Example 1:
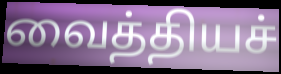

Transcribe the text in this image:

வைத்தியச்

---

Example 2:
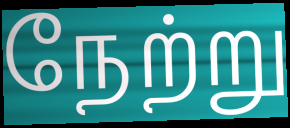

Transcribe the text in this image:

நேற்று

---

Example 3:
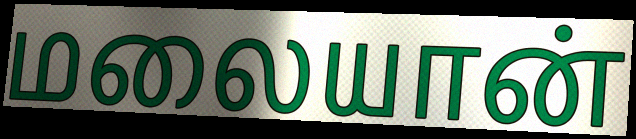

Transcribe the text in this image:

மலையான்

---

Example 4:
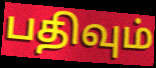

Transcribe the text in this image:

பதிவும்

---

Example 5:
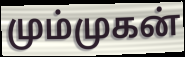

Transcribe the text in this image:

மும்முகன்